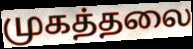
முகத்தலை